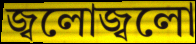
জ্বলোজ্বলো